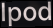
Ipod